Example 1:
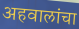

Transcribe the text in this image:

अहवालांचा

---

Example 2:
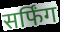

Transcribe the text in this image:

सर्फिंग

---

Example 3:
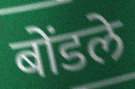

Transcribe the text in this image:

बोंडले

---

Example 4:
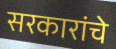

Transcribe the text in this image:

सरकारांचे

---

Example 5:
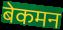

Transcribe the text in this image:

बेकमन